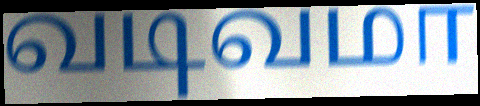
வடிவமா